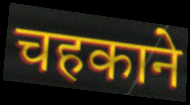
चहकाने